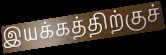
இயக்கத்திற்குச்